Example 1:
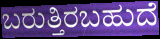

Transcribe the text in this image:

ಬರುತ್ತಿರಬಹುದೆ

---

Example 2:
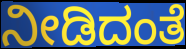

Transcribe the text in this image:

ನೀಡಿದಂತೆ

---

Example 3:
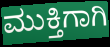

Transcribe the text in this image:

ಮುಕ್ತಿಗಾಗಿ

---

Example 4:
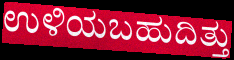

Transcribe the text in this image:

ಉಳಿಯಬಹುದಿತ್ತು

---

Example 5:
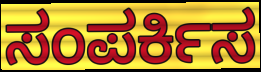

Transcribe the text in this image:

ಸಂಪರ್ಕಿಸ